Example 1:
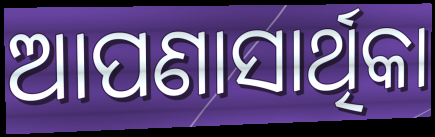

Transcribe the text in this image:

ଆପଣାସାର୍ଥିକା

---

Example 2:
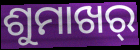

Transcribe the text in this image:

ଶୁମାଖର୍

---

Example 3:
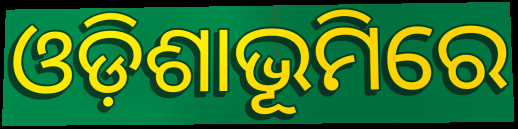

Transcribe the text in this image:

ଓଡ଼ିଶାଭୂମିରେ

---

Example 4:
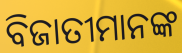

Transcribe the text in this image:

ବିଜାତୀମାନଙ୍କ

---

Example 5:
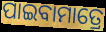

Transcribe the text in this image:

ପାଇବାମାତ୍ରେ